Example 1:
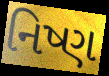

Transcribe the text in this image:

નિષ્ણ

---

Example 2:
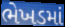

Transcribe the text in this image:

ભેખડમાં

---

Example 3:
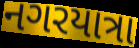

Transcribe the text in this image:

નગરયાત્રા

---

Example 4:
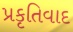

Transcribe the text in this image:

પ્રકૃતિવાદ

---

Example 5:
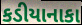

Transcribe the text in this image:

કડીયાનાકા